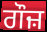
ਗੌਜ਼